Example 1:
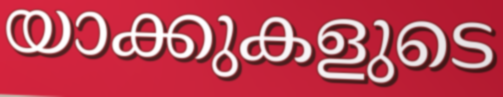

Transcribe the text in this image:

യാക്കുകളുടെ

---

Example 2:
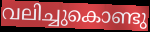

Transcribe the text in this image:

വലിച്ചുകൊണ്ടു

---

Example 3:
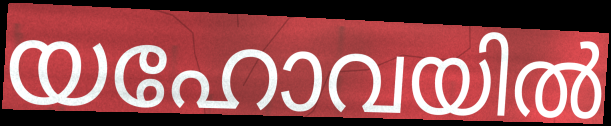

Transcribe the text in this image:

യഹോവയിൽ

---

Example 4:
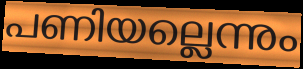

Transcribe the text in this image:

പണിയല്ലെന്നും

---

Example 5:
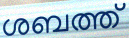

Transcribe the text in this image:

ശബത്ത്